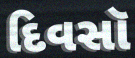
દિવસૉ